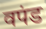
वपंड